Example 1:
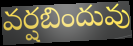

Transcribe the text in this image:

వర్షబిందువు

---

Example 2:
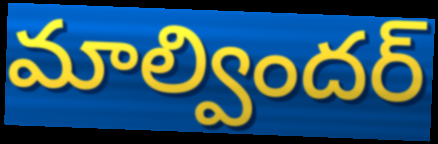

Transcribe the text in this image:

మాల్విందర్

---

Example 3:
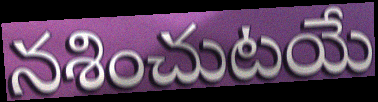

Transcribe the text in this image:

నశించుటయే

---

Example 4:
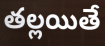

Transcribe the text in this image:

తల్లయితే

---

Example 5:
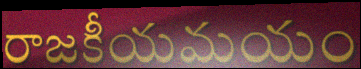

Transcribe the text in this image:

రాజకీయమయం